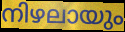
നിഴലായും